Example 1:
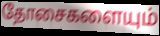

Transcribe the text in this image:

தோசைகளையும்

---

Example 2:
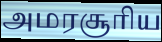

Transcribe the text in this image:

அமரசூரிய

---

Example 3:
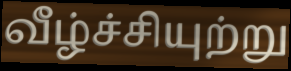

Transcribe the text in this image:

வீழ்ச்சியுற்று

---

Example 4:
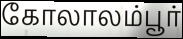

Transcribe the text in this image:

கோலாலம்பூர்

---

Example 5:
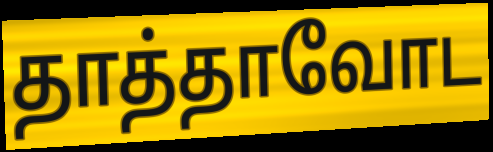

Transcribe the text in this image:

தாத்தாவோட